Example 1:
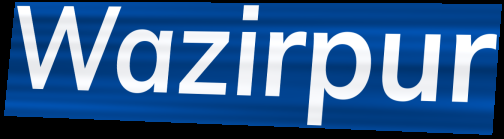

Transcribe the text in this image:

Wazirpur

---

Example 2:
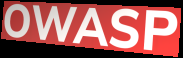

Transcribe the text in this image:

OWASP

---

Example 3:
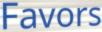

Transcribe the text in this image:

Favors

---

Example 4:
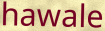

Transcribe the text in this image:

hawale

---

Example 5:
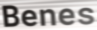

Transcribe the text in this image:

Benes